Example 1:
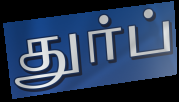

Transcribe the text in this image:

துர்ப்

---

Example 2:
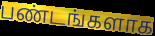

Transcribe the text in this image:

பண்டங்களாக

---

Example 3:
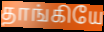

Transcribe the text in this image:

தாங்கியே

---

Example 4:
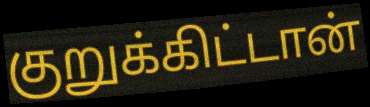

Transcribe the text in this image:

குறுக்கிட்டான்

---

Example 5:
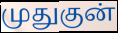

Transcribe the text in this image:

முதுகுன்